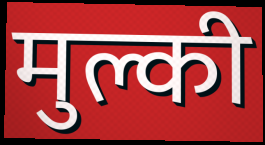
मुल्की